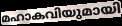
മഹാകവിയുമായി